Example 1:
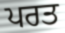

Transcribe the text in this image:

ਪਰਤ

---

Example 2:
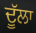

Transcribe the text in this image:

ਦੂੱਲਾ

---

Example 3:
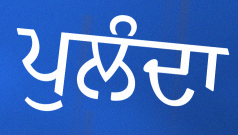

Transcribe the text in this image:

ਪੁਲੰਦਾ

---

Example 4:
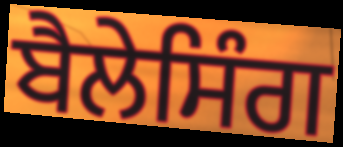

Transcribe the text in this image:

ਬੈਲੇਸਿੰਗ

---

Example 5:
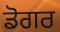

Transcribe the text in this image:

ਡੋਗਰ